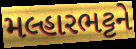
મલ્હારભટ્ટને